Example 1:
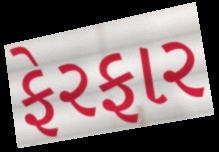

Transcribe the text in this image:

ફેરફાર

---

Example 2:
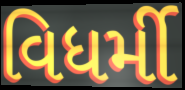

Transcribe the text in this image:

વિધર્મી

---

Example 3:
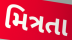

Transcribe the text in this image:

મિત્રતા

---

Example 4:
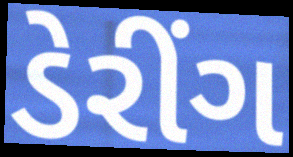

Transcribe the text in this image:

ડેરીંગ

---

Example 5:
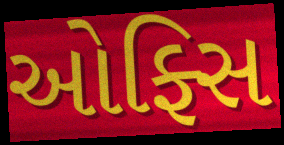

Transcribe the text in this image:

ઓફ્સિ